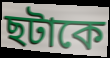
ছটাকে